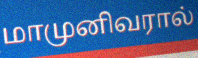
மாமுனிவரால்